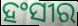
ହଂସୀର